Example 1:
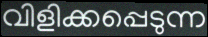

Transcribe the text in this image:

വിളിക്കപ്പെടുന്ന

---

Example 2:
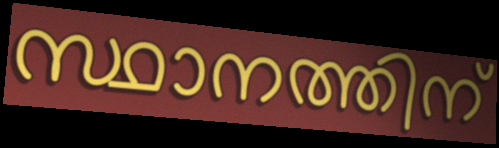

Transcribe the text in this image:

സ്ഥാനത്തിന്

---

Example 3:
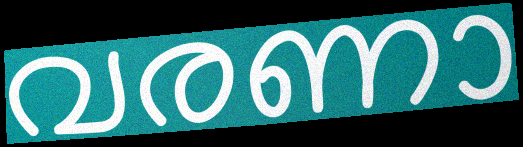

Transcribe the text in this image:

വരണാ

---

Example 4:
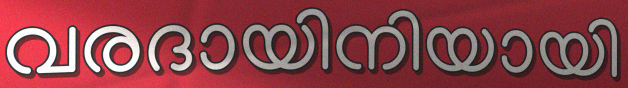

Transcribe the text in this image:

വരദായിനിയായി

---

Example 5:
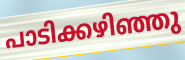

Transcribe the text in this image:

പാടിക്കഴിഞ്ഞു